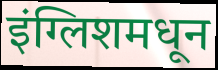
इंग्लिशमधून